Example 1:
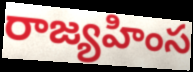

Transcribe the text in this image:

రాజ్యహింస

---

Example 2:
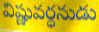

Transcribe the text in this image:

విష్ణువర్ధనుడు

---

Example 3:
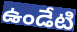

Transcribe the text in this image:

ఉండేటి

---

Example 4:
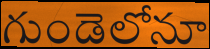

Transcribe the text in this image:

గుండెలోనూ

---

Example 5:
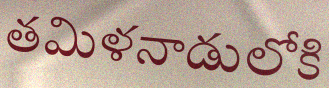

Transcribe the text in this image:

తమిళనాడులోకి